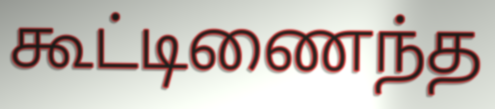
கூட்டிணைந்த